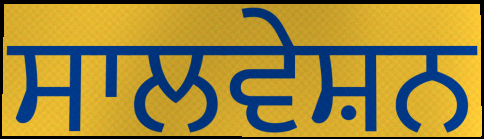
ਸਾਲਵੇਸ਼ਨ